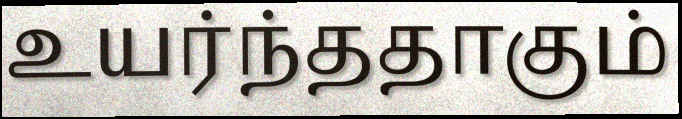
உயர்ந்ததாகும்